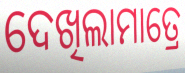
ଦେଖିଲାମାତ୍ରେ